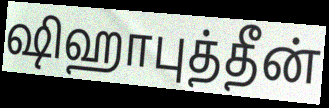
ஷிஹாபுத்தீன்